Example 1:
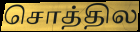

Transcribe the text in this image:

சொத்தில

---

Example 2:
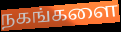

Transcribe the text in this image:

நகங்களை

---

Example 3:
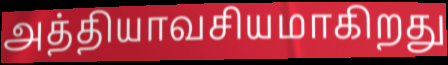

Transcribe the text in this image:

அத்தியாவசியமாகிறது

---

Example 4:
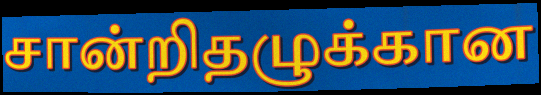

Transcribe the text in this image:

சான்றிதழுக்கான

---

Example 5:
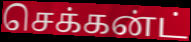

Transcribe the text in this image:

செக்கன்ட்